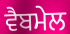
ਵੈਬਮੇਲ